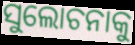
ସୁଲୋଚନାକୁ